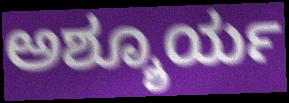
ಅಶ್ಶೂರ್ಯ